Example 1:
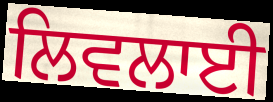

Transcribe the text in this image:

ਲਿਵਲਾਈ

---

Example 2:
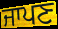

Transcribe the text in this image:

ਜਾਪਣ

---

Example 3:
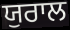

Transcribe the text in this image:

ਯੁਰਾਲ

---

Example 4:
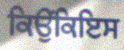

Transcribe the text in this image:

ਕਿਉਂਕਿਇਸ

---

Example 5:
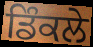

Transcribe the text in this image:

ਡਿੰਕਲੇ